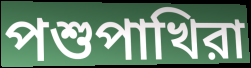
পশুপাখিরা